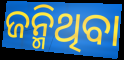
ଜନ୍ମିଥିବା